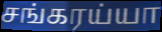
சங்கரய்யா